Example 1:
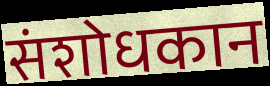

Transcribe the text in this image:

संशोधकान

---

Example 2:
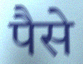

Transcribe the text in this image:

पैसे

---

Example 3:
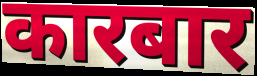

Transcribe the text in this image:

कारबार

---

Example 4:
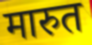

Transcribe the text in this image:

मारुत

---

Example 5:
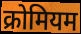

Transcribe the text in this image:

क्रोमियम